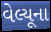
વેલ્યૂના